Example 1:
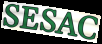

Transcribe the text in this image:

SESAC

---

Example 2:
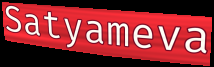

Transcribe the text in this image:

Satyameva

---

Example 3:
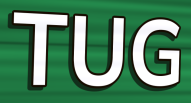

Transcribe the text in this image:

TUG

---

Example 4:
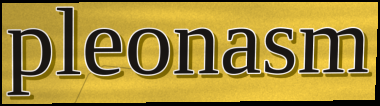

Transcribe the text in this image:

pleonasm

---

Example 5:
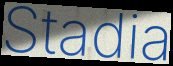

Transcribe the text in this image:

Stadia